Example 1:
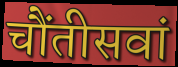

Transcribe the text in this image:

चौंतीसवां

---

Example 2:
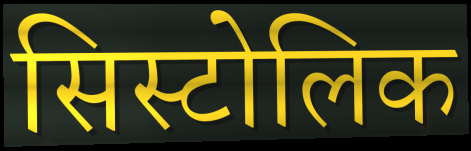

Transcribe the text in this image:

सिस्टोलिक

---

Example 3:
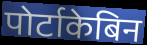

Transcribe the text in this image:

पोर्टाकेबिन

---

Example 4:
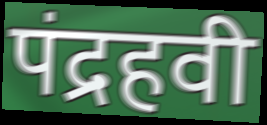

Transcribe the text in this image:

पंद्रहवी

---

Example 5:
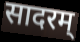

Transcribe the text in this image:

सादरम्